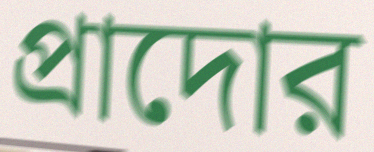
প্রাদোর